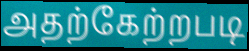
அதற்கேற்றபடி